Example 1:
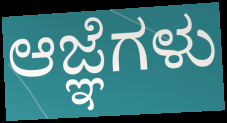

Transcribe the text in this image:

ಆಜ್ಞೆಗಳು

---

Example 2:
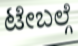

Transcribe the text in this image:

ಟೇಬಲ್ಗೆ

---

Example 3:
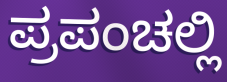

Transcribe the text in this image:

ಪ್ರಪಂಚಲ್ಲಿ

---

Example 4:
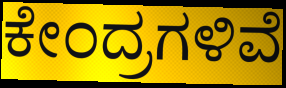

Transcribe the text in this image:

ಕೇಂದ್ರಗಳಿವೆ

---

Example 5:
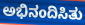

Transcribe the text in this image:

ಅಭಿನಂದಿಸಿತು